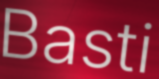
Basti